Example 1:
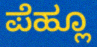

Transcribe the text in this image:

ಪೆಹ್ಲೂ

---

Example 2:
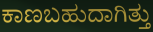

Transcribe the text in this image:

ಕಾಣಬಹುದಾಗಿತ್ತು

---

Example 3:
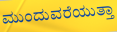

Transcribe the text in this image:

ಮುಂದುವರೆಯುತ್ತಾ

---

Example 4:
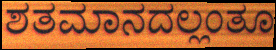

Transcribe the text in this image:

ಶತಮಾನದಲ್ಲಂತೂ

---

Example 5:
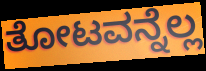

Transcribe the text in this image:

ತೋಟವನ್ನೆಲ್ಲ